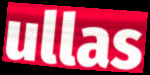
ullas